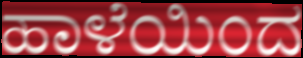
ಹಾಳೆಯಿಂದ